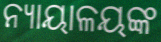
ନ୍ୟାୟାଳୟଙ୍କ